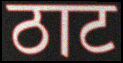
ठाट